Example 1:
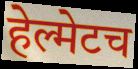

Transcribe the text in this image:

हेल्मेटच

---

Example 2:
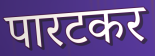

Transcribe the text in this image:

पारटकर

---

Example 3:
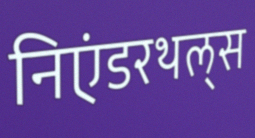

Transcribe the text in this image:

निएंडरथल्स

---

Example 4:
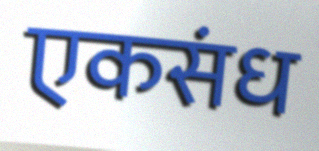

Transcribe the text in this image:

एकसंध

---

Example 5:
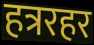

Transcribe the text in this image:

हत्ररहर